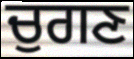
ਚੁਗਣ